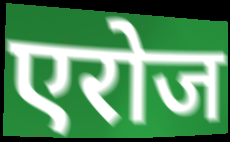
एरोज